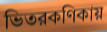
ভিতরকণিকায়